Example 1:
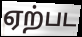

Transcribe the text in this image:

ஏற்பட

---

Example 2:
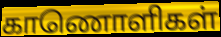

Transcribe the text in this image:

காணொளிகள்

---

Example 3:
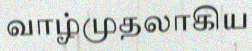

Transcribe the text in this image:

வாழ்முதலாகிய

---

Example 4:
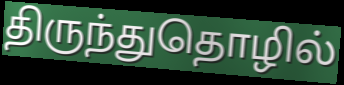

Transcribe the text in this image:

திருந்துதொழில்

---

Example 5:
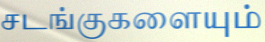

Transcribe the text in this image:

சடங்குகளையும்